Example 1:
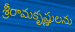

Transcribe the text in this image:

శ్రీరామకృష్ణులను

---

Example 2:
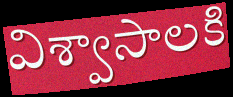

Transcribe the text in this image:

విశ్వాసాలకి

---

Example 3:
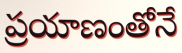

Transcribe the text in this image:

ప్రయాణంతోనే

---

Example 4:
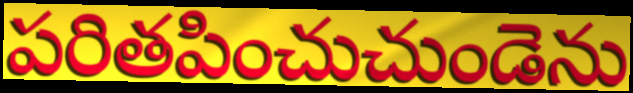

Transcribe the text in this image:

పరితపించుచుండెను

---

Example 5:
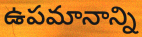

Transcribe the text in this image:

ఉపమానాన్ని